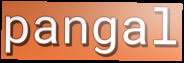
pangal